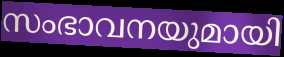
സംഭാവനയുമായി